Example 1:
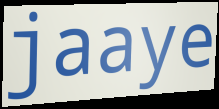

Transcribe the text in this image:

jaaye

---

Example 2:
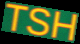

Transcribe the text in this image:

TSH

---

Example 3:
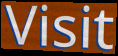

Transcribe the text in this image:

Visit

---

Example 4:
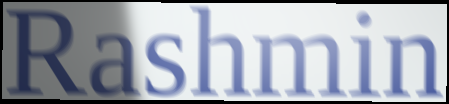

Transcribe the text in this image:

Rashmin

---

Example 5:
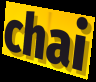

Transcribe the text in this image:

chai